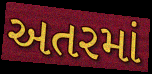
અતરમાં